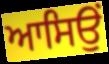
ਆਸਿਉਂ